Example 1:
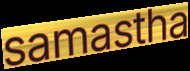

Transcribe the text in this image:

samastha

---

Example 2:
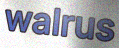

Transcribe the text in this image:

walrus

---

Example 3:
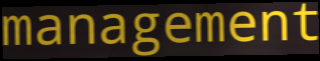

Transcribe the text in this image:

management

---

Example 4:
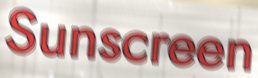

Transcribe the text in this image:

Sunscreen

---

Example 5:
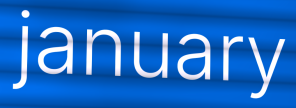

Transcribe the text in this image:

january